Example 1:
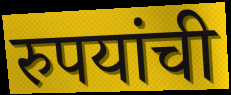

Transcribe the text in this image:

रुपयांची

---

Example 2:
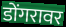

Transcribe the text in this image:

डोंगरावर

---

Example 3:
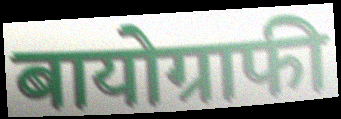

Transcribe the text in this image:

बायोग्राफी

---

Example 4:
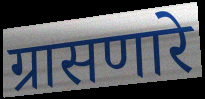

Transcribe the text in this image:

ग्रासणारे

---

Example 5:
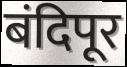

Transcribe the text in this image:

बंदिपूर